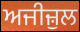
ਅਜੀਜ਼ੁਲ